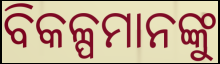
ବିକଳ୍ପମାନଙ୍କୁ